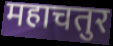
महाचतुर